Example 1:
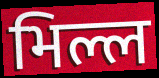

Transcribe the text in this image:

भिल्ल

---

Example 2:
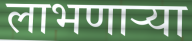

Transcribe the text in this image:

लाभणार्‍या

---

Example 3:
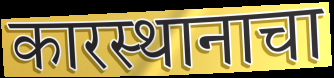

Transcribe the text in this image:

कारस्थानाचा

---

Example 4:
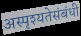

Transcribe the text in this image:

अस्पृश्यतेसंबंधी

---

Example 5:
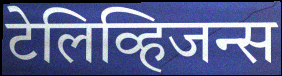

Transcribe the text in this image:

टेलिव्हिजन्स